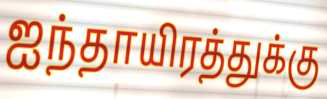
ஐந்தாயிரத்துக்கு